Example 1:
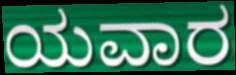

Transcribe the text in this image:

ಯವಾರ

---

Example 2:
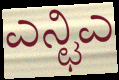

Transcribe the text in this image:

ಎನ್ಟಿಎ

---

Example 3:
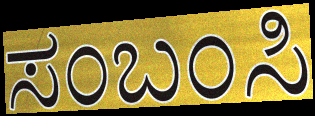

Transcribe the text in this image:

ಸಂಬಂಸಿ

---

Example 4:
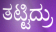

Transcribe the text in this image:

ತಟ್ಟಿದ್ರು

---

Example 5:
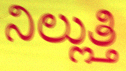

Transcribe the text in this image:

ನಿಲ್ಲುತ್ತಿ